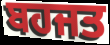
ਬਹਜਤ